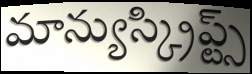
మాన్యుస్క్రిప్ట్స్